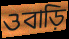
ওবাড়ি